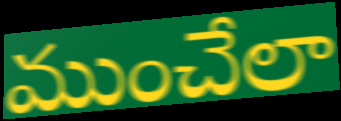
ముంచేలా